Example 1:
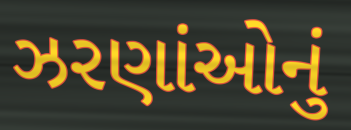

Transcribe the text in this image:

ઝરણાંઓનું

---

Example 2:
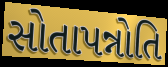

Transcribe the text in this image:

સોતાપન્નોતિ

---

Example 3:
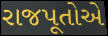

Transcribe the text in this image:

રાજપૂતોએ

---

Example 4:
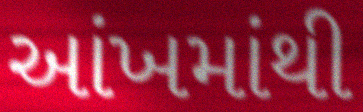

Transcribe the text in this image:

આંખમાંથી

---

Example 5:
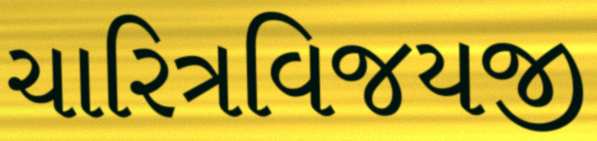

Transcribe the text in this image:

ચારિત્રવિજયજી